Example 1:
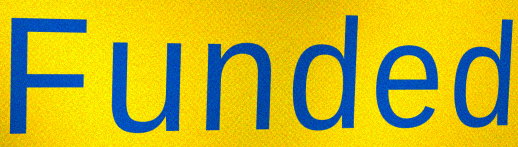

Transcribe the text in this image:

Funded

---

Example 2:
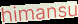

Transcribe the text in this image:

himansu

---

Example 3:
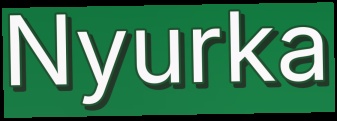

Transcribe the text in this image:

Nyurka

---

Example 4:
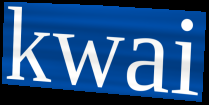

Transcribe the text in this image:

kwai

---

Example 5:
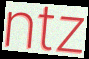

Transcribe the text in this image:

ntz